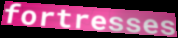
fortresses